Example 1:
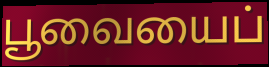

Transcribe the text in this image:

பூவையைப்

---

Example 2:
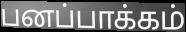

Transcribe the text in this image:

பனப்பாக்கம்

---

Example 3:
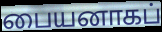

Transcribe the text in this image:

பையனாகப்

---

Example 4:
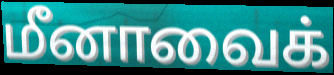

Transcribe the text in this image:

மீனாவைக்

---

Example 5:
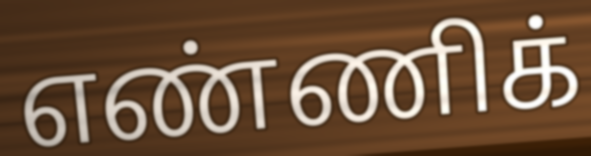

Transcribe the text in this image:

எண்ணிக்